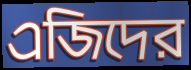
এজিদের